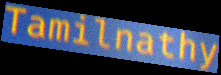
Tamilnathy